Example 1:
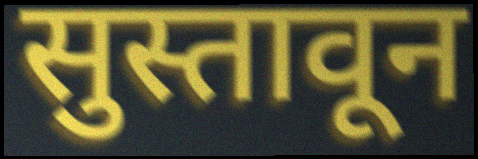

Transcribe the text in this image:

सुस्तावून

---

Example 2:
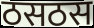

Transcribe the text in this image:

ठसठस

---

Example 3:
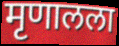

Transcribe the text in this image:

मृणालला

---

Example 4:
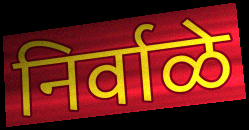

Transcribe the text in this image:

निर्वाळे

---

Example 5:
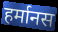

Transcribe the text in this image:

हर्मानस